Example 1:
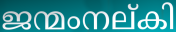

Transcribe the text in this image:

ജന്മംനല്കി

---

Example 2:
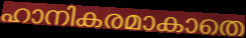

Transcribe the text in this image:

ഹാനികരമാകാതെ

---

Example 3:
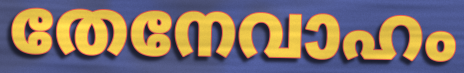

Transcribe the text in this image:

തേനേവാഹം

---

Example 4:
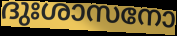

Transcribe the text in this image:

ദുഃശാസനോ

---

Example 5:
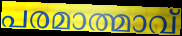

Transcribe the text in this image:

പരമാത്മാവ്